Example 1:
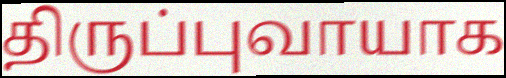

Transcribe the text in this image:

திருப்புவாயாக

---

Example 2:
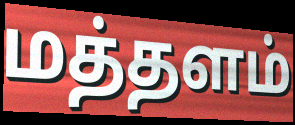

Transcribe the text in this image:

மத்தளம்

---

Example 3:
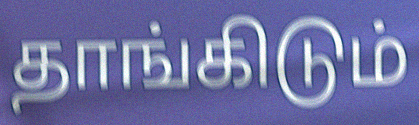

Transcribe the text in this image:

தாங்கிடும்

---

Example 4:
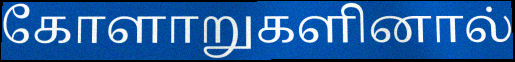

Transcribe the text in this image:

கோளாறுகளினால்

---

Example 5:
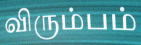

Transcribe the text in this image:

விரும்பம்